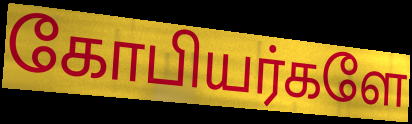
கோபியர்களே